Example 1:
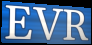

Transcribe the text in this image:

EVR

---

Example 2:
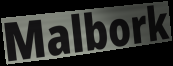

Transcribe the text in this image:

Malbork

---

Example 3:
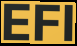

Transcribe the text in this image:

EFI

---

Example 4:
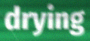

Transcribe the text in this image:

drying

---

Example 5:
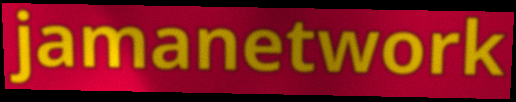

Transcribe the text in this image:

jamanetwork